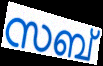
സബ്